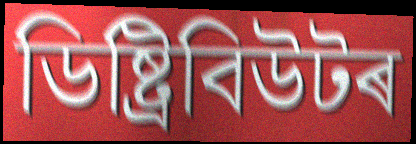
ডিষ্ট্ৰিবিউটৰ